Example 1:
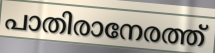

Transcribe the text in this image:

പാതിരാനേരത്ത്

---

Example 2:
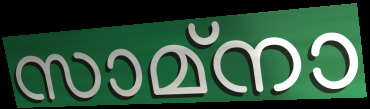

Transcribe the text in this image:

സാമ്നാ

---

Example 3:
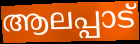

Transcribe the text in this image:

ആലപ്പാട്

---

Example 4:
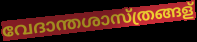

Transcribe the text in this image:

വേദാന്തശാസ്ത്രങ്ങള്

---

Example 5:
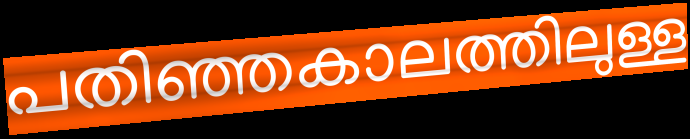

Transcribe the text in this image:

പതിഞ്ഞകാലത്തിലുള്ള